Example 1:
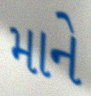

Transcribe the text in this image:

માને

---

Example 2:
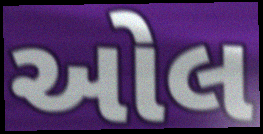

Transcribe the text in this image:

ઓલ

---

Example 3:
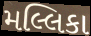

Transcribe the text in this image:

મલ્લિકા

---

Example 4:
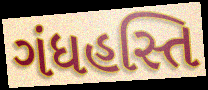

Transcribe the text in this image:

ગંધહસ્તિ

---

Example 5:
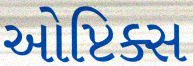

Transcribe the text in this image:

ઓપ્ટિક્સ